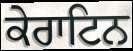
ਕੇਰਾਟਿਨ